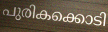
പുരികക്കൊടി